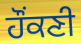
ਹੌਂਕਣੀ